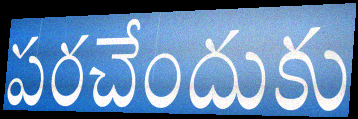
పరచేందుకు